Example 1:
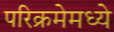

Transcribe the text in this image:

परिक्रमेमध्ये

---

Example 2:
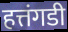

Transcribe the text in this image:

हत्तंगडी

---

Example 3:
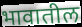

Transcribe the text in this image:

भावातील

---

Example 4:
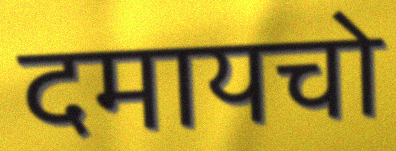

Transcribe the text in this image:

दमायचो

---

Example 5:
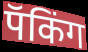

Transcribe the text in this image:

पॅकिंग